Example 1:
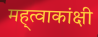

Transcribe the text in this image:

मह्त्वाकांक्षी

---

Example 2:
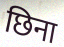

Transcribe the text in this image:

छिना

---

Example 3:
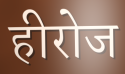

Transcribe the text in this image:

हीरोज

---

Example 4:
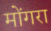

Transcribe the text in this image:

मोंगरा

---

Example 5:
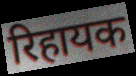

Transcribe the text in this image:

रिहायक